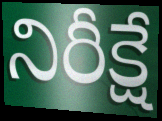
నిరీక్షే